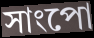
সাংপো